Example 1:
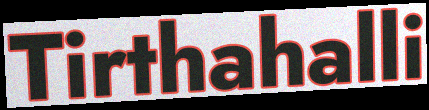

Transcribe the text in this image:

Tirthahalli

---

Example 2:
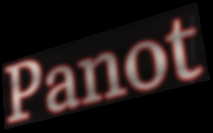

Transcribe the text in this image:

Panot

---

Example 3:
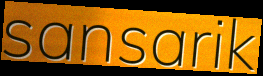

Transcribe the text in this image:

sansarik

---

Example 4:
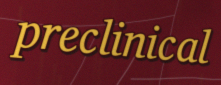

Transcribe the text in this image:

preclinical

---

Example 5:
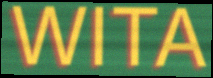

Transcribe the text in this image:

WITA